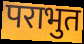
पराभुत